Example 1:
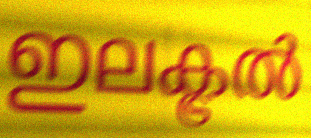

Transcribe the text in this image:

ഇലക്ട്രൽ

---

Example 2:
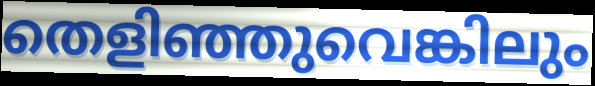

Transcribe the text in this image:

തെളിഞ്ഞുവെങ്കിലും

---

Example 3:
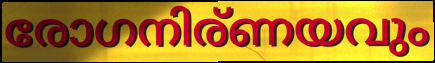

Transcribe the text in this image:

രോഗനിര്ണയവും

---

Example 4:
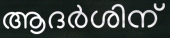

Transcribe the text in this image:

ആദർശിന്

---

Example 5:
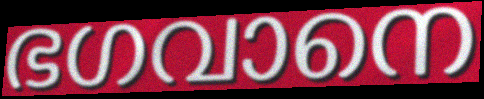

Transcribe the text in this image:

ഭഗവാനെ